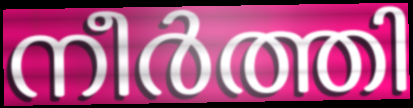
നീർത്തി